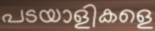
പടയാളികളെ